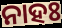
ନାହଃ